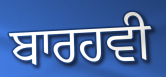
ਬਾਰਹਵੀ